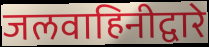
जलवाहिनीद्वारे